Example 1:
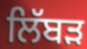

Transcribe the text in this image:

ਲਿੱਬੜ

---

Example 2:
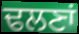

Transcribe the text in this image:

ਢਲਣਾਂ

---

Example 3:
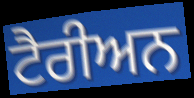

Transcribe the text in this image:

ਟੈਰੀਅਨ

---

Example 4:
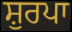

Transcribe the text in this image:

ਸ਼ੁਰਪਾ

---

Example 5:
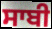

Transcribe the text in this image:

ਸਾਬੀ